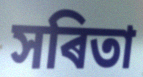
সৰিতা